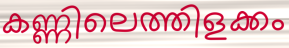
കണ്ണിലെത്തിളക്കം